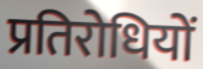
प्रतिरोधियों